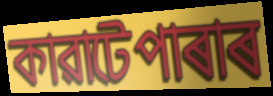
কাৱাটেপাৰাৰ